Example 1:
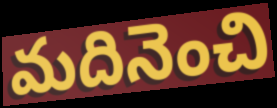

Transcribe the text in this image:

మదినెంచి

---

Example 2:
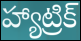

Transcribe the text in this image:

హ్యాట్రిక్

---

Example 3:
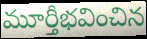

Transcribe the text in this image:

మూర్తీభవించిన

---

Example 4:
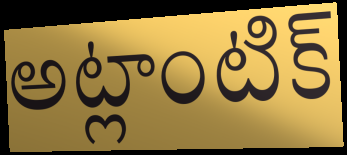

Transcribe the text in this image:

అట్లాంటిక్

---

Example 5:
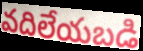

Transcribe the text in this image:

వదిలేయబడి